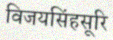
विजयसिंहसूरि